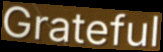
Grateful